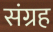
संग्रह